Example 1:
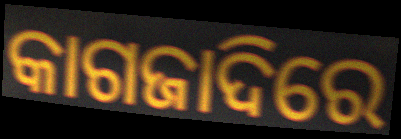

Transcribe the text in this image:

କାଗଜାଦିରେ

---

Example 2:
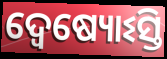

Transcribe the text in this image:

ଦ୍ୱେଷ୍ୟୋଽସ୍ତି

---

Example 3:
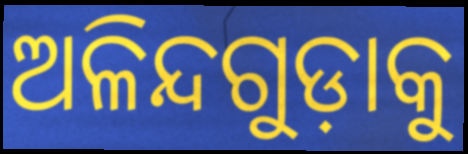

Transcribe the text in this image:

ଅଳିନ୍ଦଗୁଡ଼ାକୁ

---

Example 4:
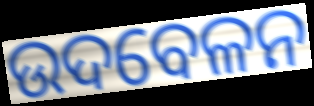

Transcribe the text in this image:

ଉଦବେଳନ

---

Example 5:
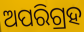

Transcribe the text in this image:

ଅପରିଗ୍ରହ